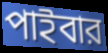
পাইবার